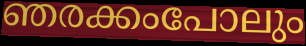
ഞരക്കംപോലും